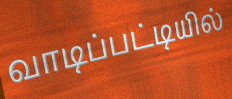
வாடிப்பட்டியில்